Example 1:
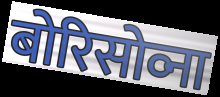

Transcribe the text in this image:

बोरिसोव्ना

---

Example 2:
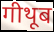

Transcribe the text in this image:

गीथूब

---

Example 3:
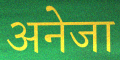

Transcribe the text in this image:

अनेजा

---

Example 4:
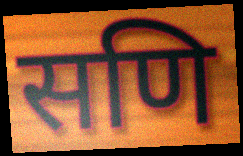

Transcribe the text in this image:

सणि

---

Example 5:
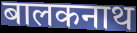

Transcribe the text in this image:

बालकनाथ